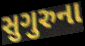
સુગુરુના